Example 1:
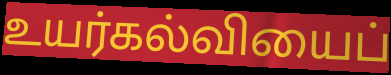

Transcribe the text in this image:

உயர்கல்வியைப்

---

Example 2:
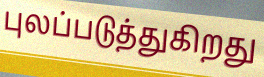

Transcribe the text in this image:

புலப்படுத்துகிறது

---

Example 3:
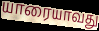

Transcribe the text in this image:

யாரையாவது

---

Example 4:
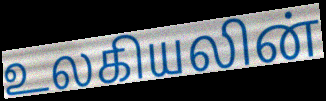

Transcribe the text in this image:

உலகியலின்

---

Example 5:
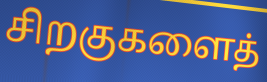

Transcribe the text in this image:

சிறகுகளைத்